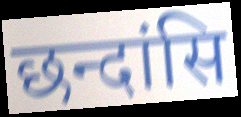
छन्दांसि